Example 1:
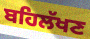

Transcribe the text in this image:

ਬਹਿਲੱਖਣ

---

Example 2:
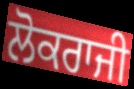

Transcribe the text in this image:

ਲੋਕਰਾਜੀ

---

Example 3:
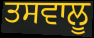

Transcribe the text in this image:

ਤਸਵਾਲੂ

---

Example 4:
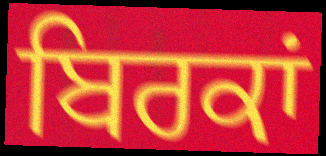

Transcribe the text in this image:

ਬਿਰਕਾਂ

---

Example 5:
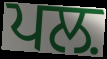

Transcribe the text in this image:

ਪਲ਼